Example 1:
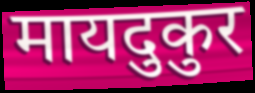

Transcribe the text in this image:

मायदुकुर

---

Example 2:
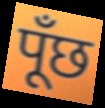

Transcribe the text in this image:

पूँछ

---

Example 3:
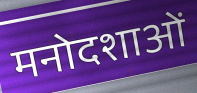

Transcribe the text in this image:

मनोदशाओं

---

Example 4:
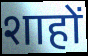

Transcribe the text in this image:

शाहों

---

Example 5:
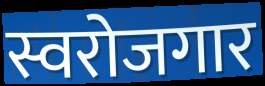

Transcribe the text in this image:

स्‍वरोजगार